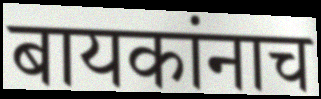
बायकांनाच